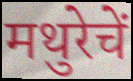
मथुरेचें